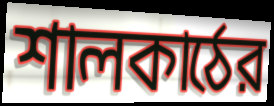
শালকাঠের